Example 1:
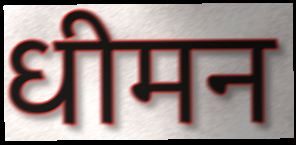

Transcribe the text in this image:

धीमन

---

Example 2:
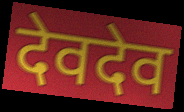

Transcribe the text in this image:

देवदेव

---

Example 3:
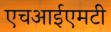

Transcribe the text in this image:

एचआईएमटी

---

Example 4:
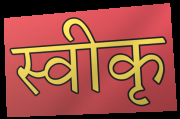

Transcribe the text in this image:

स्वीकृ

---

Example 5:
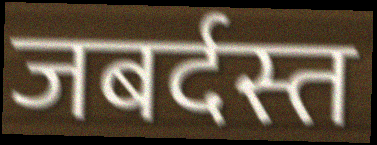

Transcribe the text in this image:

जबर्दस्त